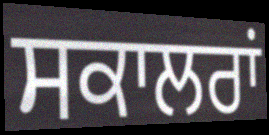
ਸਕਾਲਰਾਂ